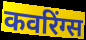
कवरिंग्स